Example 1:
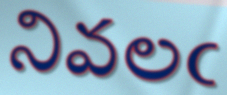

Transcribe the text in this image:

నివలఁ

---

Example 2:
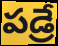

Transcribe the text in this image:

పడ్రే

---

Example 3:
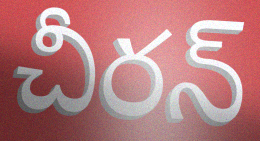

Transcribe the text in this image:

చీరన్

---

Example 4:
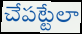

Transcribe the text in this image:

చేపట్టేలా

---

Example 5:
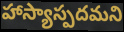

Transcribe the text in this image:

హాస్యాస్పదమని